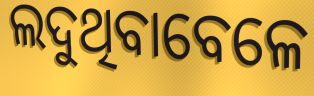
ଲଦୁଥିବାବେଳେ